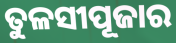
ତୁଳସୀପୂଜାର